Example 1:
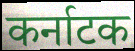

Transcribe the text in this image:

कर्नाटक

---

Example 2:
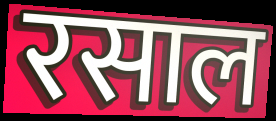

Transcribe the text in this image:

रसाल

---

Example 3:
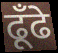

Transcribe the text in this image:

ढूँढे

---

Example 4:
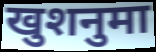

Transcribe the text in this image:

खुशनुमा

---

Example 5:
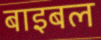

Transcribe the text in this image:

बाइबल